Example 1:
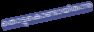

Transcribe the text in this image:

തൊട്ടുകൊണ്ടായിരുന്നു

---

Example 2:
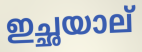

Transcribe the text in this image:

ഇച്ഛയാല്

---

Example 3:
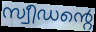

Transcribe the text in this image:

സ്വീഡന്റെ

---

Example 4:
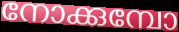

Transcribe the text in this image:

നോക്കുമ്പോ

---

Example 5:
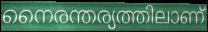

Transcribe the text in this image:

നൈരന്തര്യത്തിലാണ്